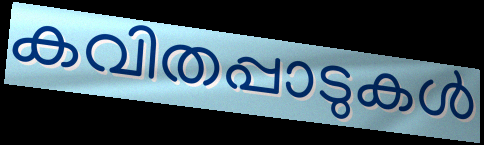
കവിതപ്പാടുകൾ